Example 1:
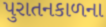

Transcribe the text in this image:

પુરાતનકાળના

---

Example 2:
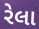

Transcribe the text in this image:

રેલા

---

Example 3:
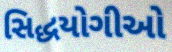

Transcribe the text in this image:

સિદ્ધયોગીઓ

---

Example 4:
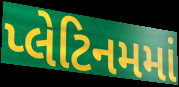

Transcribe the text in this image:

પ્લેટિનમમાં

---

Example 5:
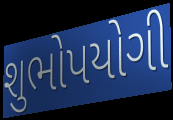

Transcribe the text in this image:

શુભોપયોગી